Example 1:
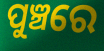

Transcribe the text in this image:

ପୁଞ୍ଚରେ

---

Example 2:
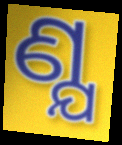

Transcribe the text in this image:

ଣ୍ଯ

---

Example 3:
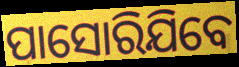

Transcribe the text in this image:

ପାସୋରିଯିବେ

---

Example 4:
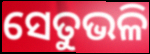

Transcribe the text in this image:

ସେତୁଭଳି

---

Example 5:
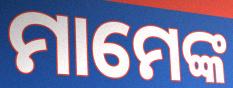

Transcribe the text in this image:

ମାମେଙ୍କ